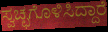
ಸ್ವಚ್ಛಗೊಳಿಸಿದ್ದಾರೆ